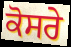
ਕੋਸਰੇ